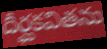
దీర్ఘకవితను